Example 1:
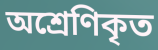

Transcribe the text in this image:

অশ্রেণিকৃত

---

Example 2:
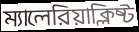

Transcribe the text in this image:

ম্যালেরিয়াক্লিষ্ট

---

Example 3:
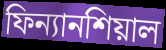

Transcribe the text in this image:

ফিন্যানশিয়াল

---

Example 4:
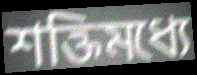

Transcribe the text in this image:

শক্তিমধ্যে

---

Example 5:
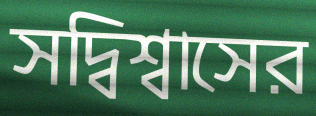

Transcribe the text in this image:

সদ্বিশ্বাসের